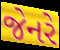
જેનરે